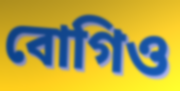
বোগিও